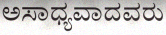
ಅಸಾಧ್ಯವಾದವರು